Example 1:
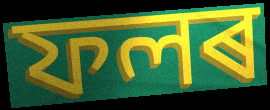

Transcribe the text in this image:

ফলৰ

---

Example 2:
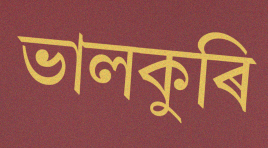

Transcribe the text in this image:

ভালকুৰি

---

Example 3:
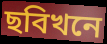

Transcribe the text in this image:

ছবিখনে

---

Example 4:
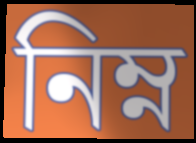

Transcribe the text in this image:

নিম্ন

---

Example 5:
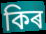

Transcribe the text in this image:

কিৰ